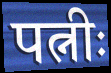
पत्नीः